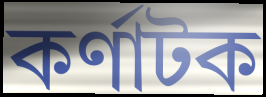
কর্ণাটক